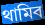
থামিব